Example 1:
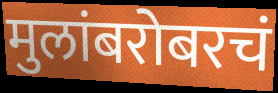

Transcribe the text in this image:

मुलांबरोबरचं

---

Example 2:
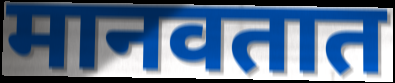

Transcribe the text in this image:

मानवतात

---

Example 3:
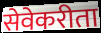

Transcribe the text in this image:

सेवेकरीता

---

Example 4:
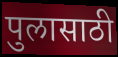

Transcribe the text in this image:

पुलासाठी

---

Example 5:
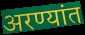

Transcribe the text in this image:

अरण्यांत